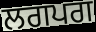
ਲਗਪਗ